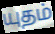
யுதம்